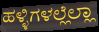
ಹಳ್ಳಿಗಳಲ್ಲೆಲ್ಲಾ